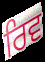
ਰਿਵ